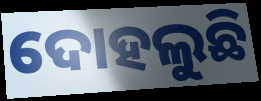
ଦୋହଲୁଛି